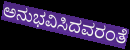
ಅನುಭವಿಸಿದವರಂತೆ